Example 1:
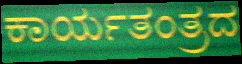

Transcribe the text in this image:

ಕಾರ್ಯತಂತ್ರದ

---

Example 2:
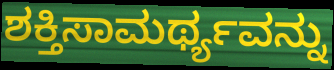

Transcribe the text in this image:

ಶಕ್ತಿಸಾಮರ್ಥ್ಯವನ್ನು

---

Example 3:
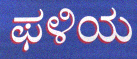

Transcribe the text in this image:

ಫಳಿಯ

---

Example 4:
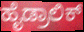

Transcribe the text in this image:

ಹೈಡ್ರಾಲಿಕ್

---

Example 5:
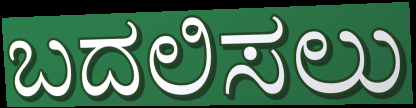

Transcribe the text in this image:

ಬದಲಿಸಲು